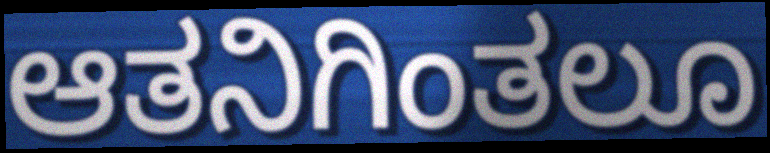
ಆತನಿಗಿಂತಲೂ